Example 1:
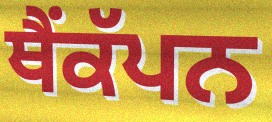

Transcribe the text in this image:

ਥੈਂਕੱਪਨ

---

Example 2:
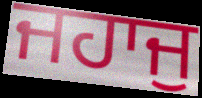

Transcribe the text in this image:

ਜਹਾਜੁ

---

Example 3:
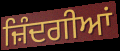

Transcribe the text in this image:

ਜ਼ਿੰਦਗੀਆਂ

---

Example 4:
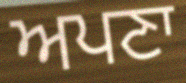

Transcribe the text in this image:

ਅਪਣਾ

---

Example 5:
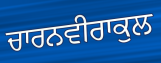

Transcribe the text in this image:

ਚਾਰਨਵੀਰਾਕੁਲ